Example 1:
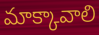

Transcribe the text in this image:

మాక్కావాలి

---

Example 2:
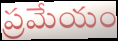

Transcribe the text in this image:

ప్రమేయం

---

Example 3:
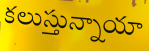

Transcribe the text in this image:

కలుస్తున్నాయా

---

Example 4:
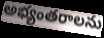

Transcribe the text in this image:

అభ్యంతరాలను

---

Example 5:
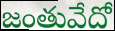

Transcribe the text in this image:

జంతువేదో